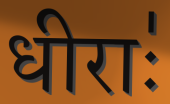
धीराः॑